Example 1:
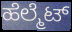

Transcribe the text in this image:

ಹೆಲ್ಮೆಟ್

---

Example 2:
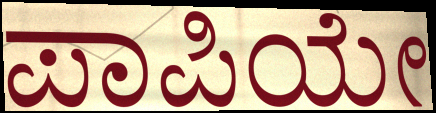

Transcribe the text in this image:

ಪಾಪಿಯೇ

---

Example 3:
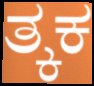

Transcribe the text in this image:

ತ್ಕಕ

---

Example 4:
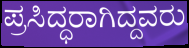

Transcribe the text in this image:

ಪ್ರಸಿದ್ಧರಾಗಿದ್ದವರು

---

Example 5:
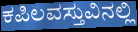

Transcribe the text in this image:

ಕಪಿಲವಸ್ತುವಿನಲ್ಲಿ